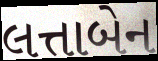
લત્તાબેન